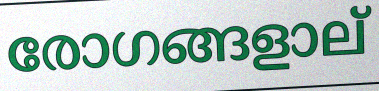
രോഗങ്ങളാല്